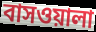
বাসওয়ালা